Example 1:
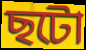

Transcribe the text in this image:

ছটো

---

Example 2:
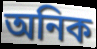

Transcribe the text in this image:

অনিক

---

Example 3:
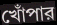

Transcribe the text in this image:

খোঁপার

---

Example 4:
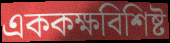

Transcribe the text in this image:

এককক্ষবিশিষ্ট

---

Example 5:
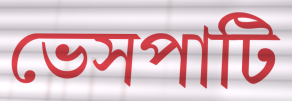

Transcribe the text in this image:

ভেসপাটি